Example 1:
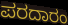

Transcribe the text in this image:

ಪರದಾರಂ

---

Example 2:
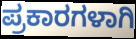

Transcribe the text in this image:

ಪ್ರಕಾರಗಳಾಗಿ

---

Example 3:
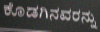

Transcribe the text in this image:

ಕೊಡಗಿನವರನ್ನು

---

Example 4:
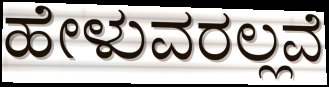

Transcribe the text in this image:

ಹೇಳುವರಲ್ಲವೆ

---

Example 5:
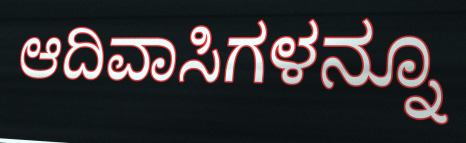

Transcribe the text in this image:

ಆದಿವಾಸಿಗಳನ್ನೂ